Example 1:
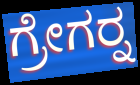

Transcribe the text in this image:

ಗ್ರೇಗರ್‍ನ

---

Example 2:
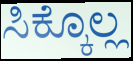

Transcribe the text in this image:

ಸಿಕ್ಕೊಲ್ಲ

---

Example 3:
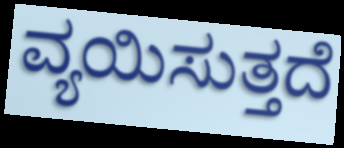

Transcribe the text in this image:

ವ್ಯಯಿಸುತ್ತದೆ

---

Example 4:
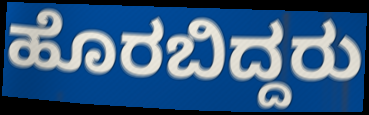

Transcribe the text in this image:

ಹೊರಬಿದ್ದರು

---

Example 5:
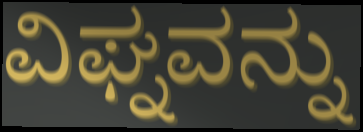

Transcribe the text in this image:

ವಿಘ್ನವನ್ನು